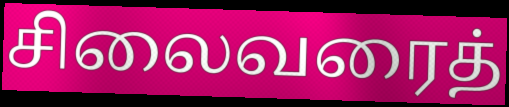
சிலைவரைத்